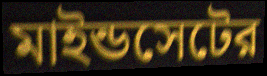
মাইন্ডসেটের